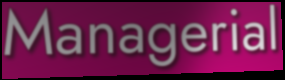
Managerial